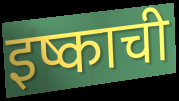
इष्काची